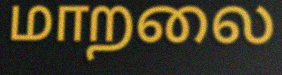
மாறலை